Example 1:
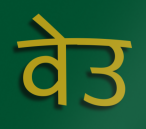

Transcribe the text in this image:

वेउ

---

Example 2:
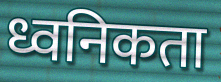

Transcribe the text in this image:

ध्वनिकता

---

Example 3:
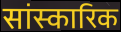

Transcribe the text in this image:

सांस्कारिक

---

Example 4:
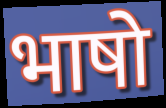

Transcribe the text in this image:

भाषो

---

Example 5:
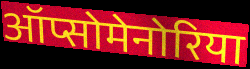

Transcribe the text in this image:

ऑप्सोमेनोरिया